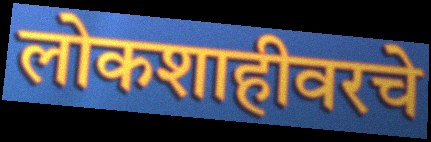
लोकशाहीवरचे